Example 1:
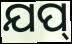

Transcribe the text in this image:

ଯପ୍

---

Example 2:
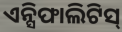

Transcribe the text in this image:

ଏନ୍ସିଫାଲିଟିସ୍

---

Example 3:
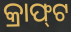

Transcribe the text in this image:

କ୍ରାଫ୍‌ଟ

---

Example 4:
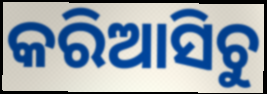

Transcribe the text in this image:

କରିଆସିଚୁ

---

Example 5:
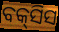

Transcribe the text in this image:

ବକ୍‍ସିସ